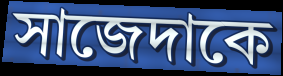
সাজেদাকে